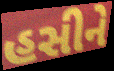
હસીને